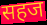
सहज